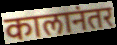
कालानंतर